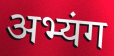
अभ्यंग